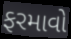
ફરમાવો